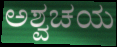
ಅಶ್ವಚಯ